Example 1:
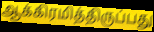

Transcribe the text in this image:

ஆக்கிரமித்திருப்பது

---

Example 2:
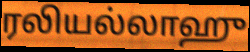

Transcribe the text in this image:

ரலியல்லாஹு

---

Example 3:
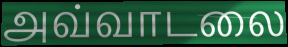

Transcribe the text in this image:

அவ்வாடலை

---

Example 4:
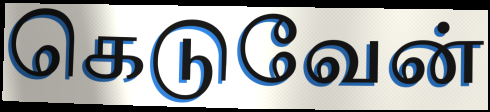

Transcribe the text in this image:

கெடுவேன்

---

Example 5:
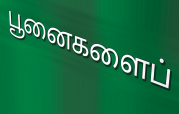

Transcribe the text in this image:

பூனைகளைப்